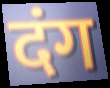
दंग